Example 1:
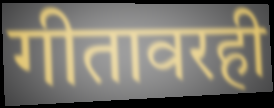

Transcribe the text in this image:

गीतावरही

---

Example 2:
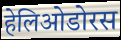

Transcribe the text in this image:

हेलिओडोरस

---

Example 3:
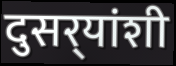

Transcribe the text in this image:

दुसर्‍यांशी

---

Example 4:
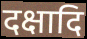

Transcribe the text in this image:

दक्षादि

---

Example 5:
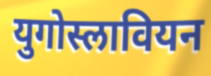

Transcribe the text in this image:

युगोस्लावियन